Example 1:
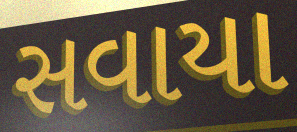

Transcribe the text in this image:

સવાયા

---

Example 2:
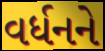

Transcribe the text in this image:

વર્ધનને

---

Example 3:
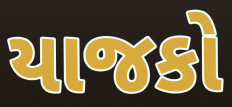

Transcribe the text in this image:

યાજકો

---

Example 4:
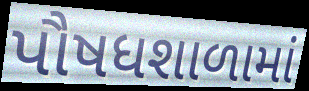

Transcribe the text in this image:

પૌષધશાળામાં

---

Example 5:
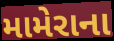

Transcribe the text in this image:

મામેરાના